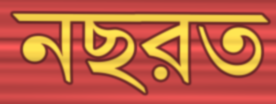
নছরত